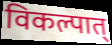
विकल्पात्